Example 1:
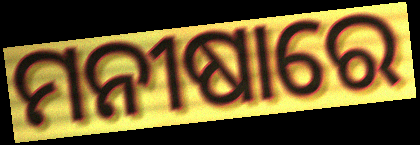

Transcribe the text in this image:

ମନୀଷାରେ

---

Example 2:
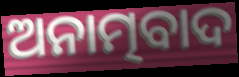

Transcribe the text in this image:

ଅନାତ୍ମବାଦ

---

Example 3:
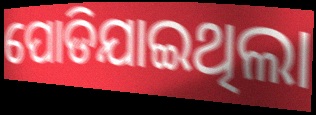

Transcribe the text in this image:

ପୋଡିଯାଇଥିଲା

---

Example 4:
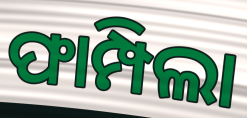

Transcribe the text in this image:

ଫାମ୍ପିଲା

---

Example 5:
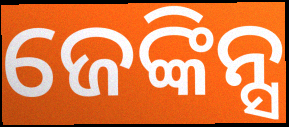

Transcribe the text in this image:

ଜେଙ୍କିନ୍ସ